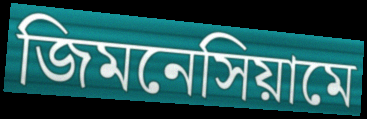
জিমনেসিয়ামে